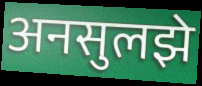
अनसुलझे